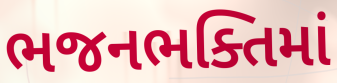
ભજનભક્તિમાં